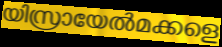
യിസ്രായേൽമക്കളെ